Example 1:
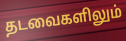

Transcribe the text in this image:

தடவைகளிலும்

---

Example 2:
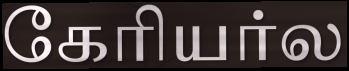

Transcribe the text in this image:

கேரியர்ல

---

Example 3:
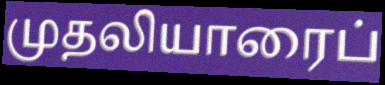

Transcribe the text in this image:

முதலியாரைப்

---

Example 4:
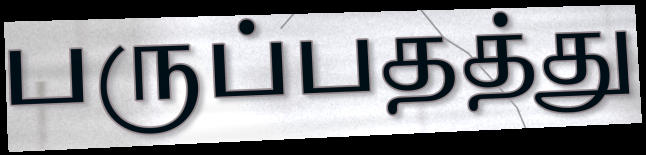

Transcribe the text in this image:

பருப்பதத்து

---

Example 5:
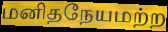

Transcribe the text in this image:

மனிதநேயமற்ற